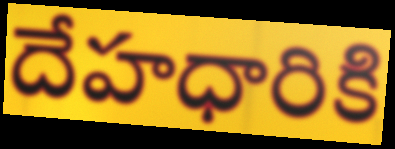
దేహధారికి